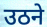
उठने